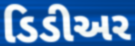
ડિડીઅર